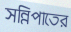
সন্নিপাতের